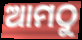
ଆମଠୁ